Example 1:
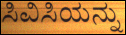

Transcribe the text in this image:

ಸಿವಿಸಿಯನ್ನು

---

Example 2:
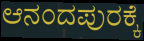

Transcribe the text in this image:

ಆನಂದಪುರಕ್ಕೆ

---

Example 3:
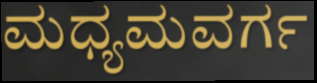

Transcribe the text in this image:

ಮಧ್ಯಮವರ್ಗ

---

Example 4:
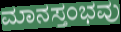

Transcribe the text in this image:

ಮಾನಸ್ತಂಭವು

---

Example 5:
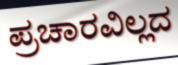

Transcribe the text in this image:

ಪ್ರಚಾರವಿಲ್ಲದ